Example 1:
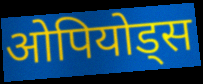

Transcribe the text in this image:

ओपियोड्स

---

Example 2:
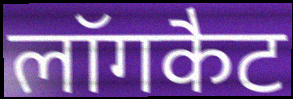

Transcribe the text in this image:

लॉगकैट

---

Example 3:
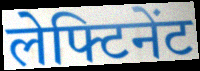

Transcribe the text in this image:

लेफ्टिनेंट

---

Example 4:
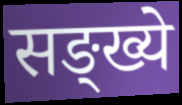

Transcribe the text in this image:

सङ्ख्ये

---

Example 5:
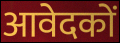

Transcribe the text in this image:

आवेदकों